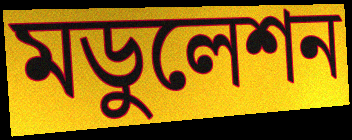
মডুলেশন